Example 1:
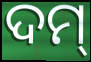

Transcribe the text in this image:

ଦମ୍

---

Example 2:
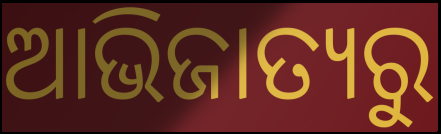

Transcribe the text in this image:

ଆଭିଜାତ୍ୟରୁ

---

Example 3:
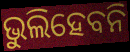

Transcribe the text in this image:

ଭୁଲିହେବନି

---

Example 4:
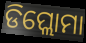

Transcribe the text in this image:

ଡିପ୍ଲୋମା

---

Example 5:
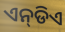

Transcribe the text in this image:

ଏନ୍‌ଡିଏ